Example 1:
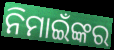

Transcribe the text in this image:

ନିମାଇଁଙ୍କର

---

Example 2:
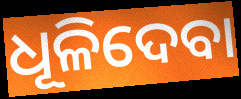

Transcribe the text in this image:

ଧୂଳିଦେବା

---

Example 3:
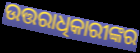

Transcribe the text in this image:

ଉତ୍ତରାଧିକାରୀଙ୍କର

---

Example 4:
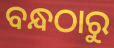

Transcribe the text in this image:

ବନ୍ଧଠାରୁ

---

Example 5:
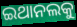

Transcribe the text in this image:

ଇଥାନଲକୁ